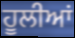
ਹੂਲੀਆਂ